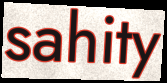
sahity